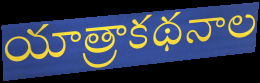
యాత్రాకథనాల